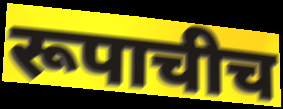
रूपाचीच